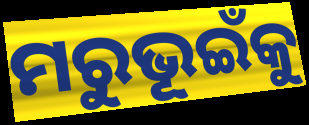
ମରୁଭୂଇଁକୁ